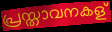
പ്രസ്താവനകള്